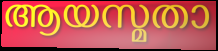
ആയസ്മതാ